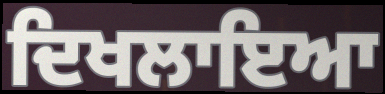
ਦਿਖਲਾਇਆ